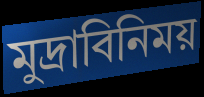
মুদ্রাবিনিময়